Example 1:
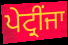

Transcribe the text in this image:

ਪੇਟ੍ਰੀਂਜਾ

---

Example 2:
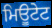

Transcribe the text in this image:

ਮਿਊਟੇਟ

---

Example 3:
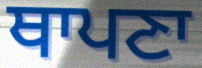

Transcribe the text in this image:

ਥਾਪਣਾ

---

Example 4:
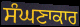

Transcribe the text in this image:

ਸੰਘਣਾਕਾਰ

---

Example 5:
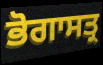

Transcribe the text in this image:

ਭੋਗਾਸਤ੍ਰ